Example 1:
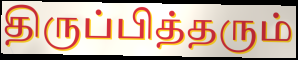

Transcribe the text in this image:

திருப்பித்தரும்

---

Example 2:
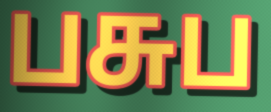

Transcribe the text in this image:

பசுப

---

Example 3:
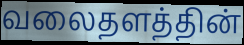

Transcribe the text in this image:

வலைதளத்தின்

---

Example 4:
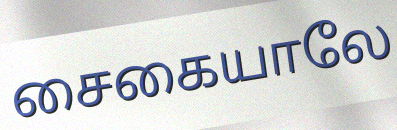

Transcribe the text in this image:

சைகையாலே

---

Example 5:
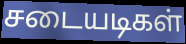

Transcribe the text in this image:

சடையடிகள்